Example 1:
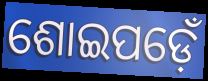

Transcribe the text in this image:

ଶୋଇପଡ଼େଁ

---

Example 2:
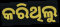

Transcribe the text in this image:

କରିଥିଲୁ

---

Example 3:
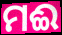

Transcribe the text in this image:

ମଈ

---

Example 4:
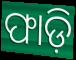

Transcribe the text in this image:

ଫାଡ଼ି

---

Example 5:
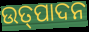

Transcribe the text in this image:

ଉତ୍‌ପାଦନ